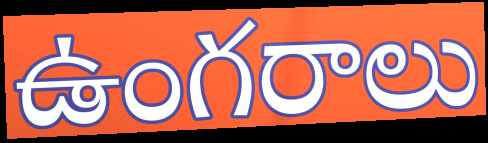
ఉంగరాలు